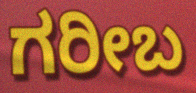
ಗರೀಬ